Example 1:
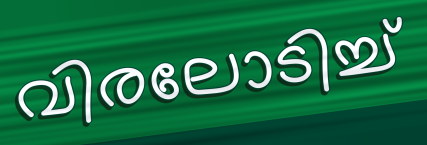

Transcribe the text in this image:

വിരലോടിച്ച്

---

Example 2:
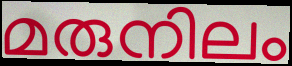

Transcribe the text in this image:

മരുനിലം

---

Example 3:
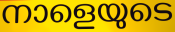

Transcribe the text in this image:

നാളെയുടെ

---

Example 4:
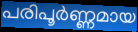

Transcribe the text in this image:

പരിപൂർണ്ണമായ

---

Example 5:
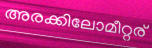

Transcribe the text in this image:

അരക്കിലോമീറ്റര്